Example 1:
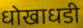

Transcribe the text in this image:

धोखाधडी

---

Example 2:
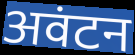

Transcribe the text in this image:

अवंटन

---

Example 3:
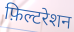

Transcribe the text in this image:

फ़िल्टरेशन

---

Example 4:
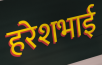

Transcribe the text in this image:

हरेशभाई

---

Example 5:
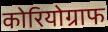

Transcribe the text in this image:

कोरियोग्राफ